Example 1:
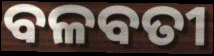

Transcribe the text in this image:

ବଳବତୀ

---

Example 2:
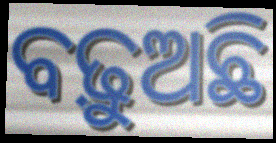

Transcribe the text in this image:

ବଢ଼ୁଅଛି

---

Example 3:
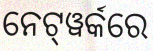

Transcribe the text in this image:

ନେଟ୍‍ୱର୍କରେ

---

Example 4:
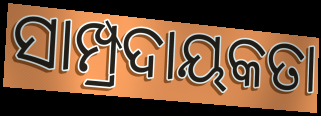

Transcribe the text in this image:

ସାମ୍ପ୍ରଦାୟକତା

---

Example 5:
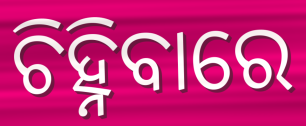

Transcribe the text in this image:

ଚିହ୍ନିବାରେ